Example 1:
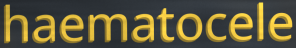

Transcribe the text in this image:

haematocele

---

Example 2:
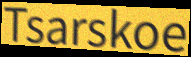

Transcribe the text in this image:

Tsarskoe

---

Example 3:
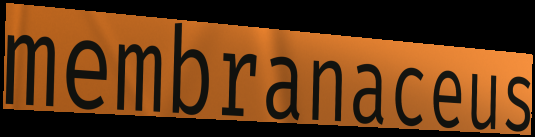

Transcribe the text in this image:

membranaceus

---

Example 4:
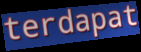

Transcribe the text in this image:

terdapat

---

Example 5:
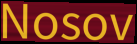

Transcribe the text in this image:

Nosov